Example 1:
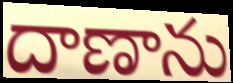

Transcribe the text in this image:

దాణాను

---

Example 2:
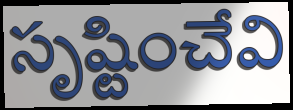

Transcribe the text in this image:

సృష్టించేవి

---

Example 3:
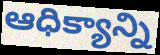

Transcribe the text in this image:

ఆధిక్యాన్ని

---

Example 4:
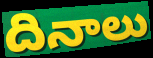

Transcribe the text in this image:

దినాలు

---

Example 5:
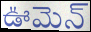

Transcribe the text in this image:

ఊమెన్